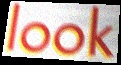
look